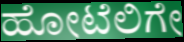
ಹೋಟೆಲಿಗೇ